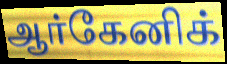
ஆர்கேனிக்